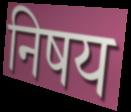
निषय